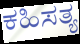
ಕಹಿಸತ್ಯ